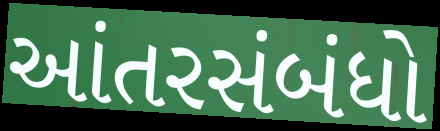
આંતરસંબંધો